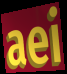
aei